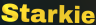
Starkie